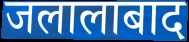
जलालाबाद